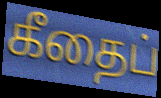
கீதைப்